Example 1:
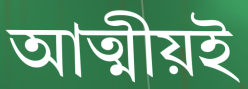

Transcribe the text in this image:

আত্মীয়ই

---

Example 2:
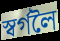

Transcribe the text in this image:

স্বৰ্গলৈ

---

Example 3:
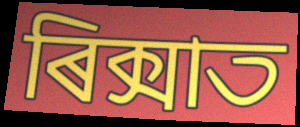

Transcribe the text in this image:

ৰিক্সাত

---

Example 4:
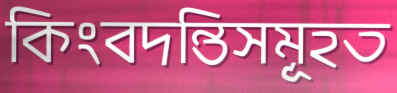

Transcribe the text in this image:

কিংবদন্তিসমূহত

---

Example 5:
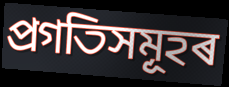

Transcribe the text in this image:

প্ৰগতিসমূহৰ